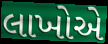
લાખોએ